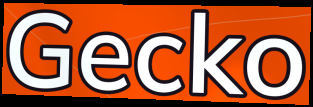
Gecko